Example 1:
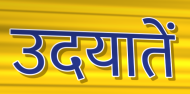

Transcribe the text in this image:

उदयातें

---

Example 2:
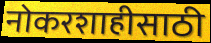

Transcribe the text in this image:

नोकरशाहीसाठी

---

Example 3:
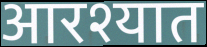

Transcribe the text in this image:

आरश्यात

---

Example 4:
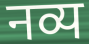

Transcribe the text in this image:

नव्य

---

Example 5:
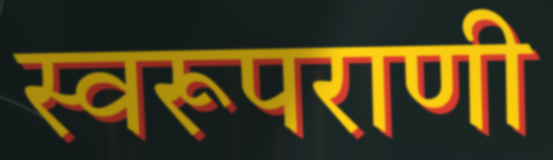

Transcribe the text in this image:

स्वरूपराणी